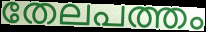
തേലപത്തം